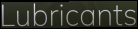
Lubricants